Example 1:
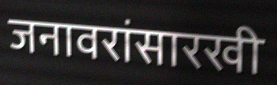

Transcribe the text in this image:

जनावरांसारखी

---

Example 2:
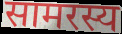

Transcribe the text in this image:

सामरस्य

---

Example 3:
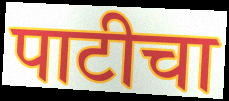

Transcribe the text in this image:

पाटीचा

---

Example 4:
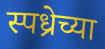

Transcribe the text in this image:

स्पध्रेच्या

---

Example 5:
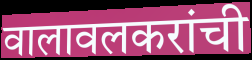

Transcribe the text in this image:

वालावलकरांची